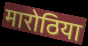
मारोठिया